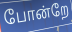
போன்றே